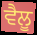
ਵੈਲੂ